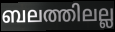
ബലത്തിലല്ല